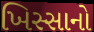
ખિસ્સાનો